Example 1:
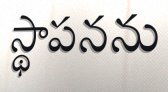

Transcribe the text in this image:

స్థాపనను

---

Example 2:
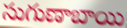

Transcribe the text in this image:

సుగుణాబాయి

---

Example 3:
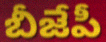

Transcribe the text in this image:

బీజేపీ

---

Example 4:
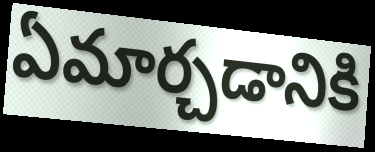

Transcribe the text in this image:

ఏమార్చడానికి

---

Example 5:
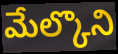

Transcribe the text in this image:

మేల్కొని